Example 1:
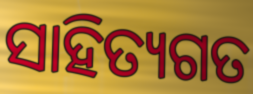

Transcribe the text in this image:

ସାହିତ୍ୟଗତ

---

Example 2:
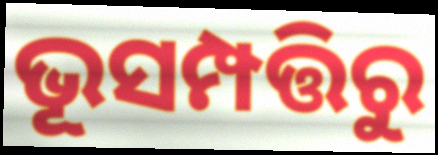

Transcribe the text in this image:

ଭୂସମ୍ପତ୍ତିରୁ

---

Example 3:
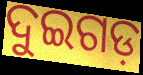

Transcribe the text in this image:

ଦୁଇଗଡ଼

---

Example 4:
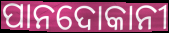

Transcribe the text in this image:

ପାନଦୋକାନୀ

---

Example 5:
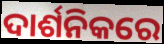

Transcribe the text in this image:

ଦାର୍ଶନିକରେ